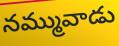
నమ్మువాడు